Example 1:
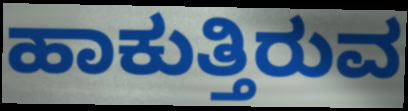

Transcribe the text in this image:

ಹಾಕುತ್ತಿರುವ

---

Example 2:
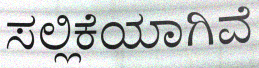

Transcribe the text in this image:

ಸಲ್ಲಿಕೆಯಾಗಿವೆ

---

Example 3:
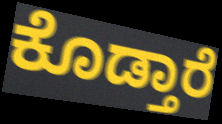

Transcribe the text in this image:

ಕೊಡ್ತಾರೆ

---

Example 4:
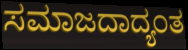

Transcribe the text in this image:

ಸಮಾಜದಾದ್ಯಂತ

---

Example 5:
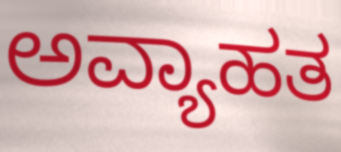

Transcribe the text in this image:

ಅವ್ಯಾಹತ